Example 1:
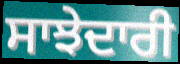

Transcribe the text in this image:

ਸਾਝੇਦਾਰੀ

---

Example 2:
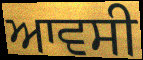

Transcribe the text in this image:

ਆਵਸੀ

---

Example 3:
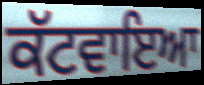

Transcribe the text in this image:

ਕੱਟਵਾਇਆ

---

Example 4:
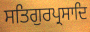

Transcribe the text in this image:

ਸਤਿਗੁਰਪ੍ਰਸਾਦਿ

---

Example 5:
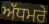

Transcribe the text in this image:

ਅੱਧਮਰੇ